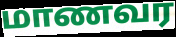
மாணவர